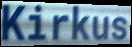
Kirkus